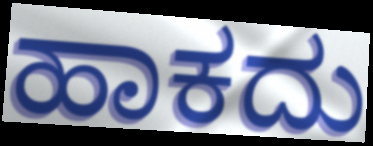
ಹಾಕದು